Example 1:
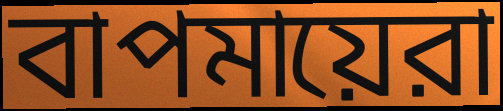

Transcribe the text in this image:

বাপমায়েরা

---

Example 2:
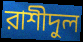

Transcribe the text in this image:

রাশীদুল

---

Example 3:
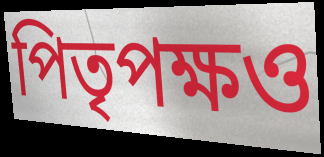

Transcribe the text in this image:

পিতৃপক্ষও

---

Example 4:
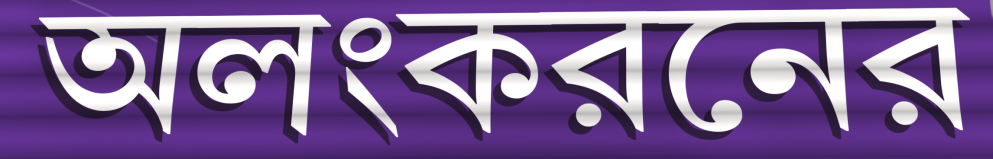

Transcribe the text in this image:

অলংকরনের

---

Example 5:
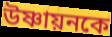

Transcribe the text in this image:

উষ্ণায়নকে